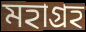
মহাগ্রহ